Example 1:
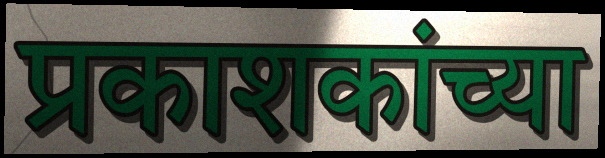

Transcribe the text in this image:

प्रकाशकांच्या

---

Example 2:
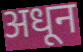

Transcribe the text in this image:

अधून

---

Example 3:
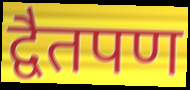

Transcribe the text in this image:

द्वैतपण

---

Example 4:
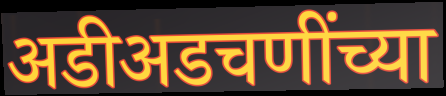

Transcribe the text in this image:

अडीअडचणींच्या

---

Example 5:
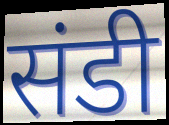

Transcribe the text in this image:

संडी